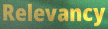
Relevancy